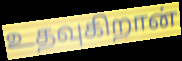
உதவுகிறான்